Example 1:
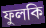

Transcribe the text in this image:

ফুলকি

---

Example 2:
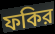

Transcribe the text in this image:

ফকির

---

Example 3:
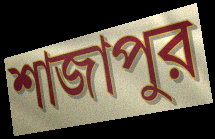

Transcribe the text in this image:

শাজাপুর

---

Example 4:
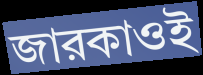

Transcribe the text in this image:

জারকাওই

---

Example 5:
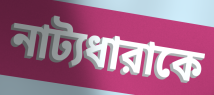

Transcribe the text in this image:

নাট্যধারাকে